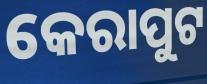
କେରାପୁଟ